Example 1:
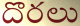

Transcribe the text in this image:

దొరలు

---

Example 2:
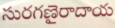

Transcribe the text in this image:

సురగణైరాదాయ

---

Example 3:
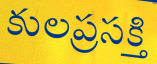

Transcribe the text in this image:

కులప్రసక్తి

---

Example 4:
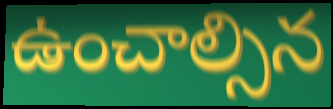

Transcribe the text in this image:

ఉంచాల్సిన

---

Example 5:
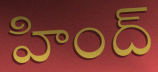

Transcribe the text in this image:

హింద్